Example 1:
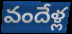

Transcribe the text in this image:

వందేళ్ల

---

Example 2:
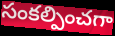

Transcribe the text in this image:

సంకల్పించగా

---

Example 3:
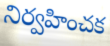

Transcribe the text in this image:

నిర్వహించక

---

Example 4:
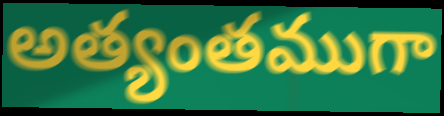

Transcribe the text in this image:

అత్యంతముగా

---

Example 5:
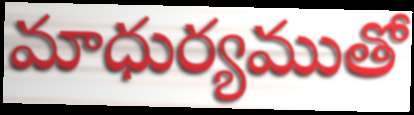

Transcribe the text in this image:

మాధుర్యముతో